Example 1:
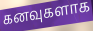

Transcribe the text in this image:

கனவுகளாக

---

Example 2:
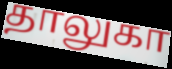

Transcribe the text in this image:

தாலுகா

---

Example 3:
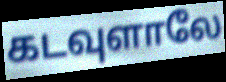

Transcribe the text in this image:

கடவுளாலே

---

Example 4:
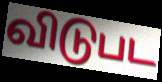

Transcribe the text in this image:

விடுபட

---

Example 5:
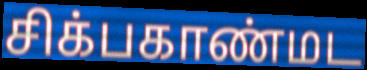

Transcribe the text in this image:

சிக்பகாண்மட